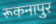
रूकनापुर